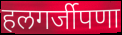
हलगर्जीपणा